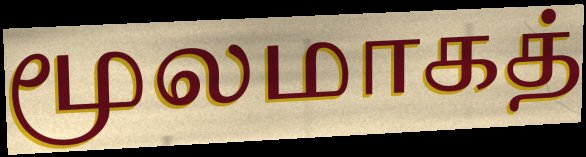
மூலமாகத்